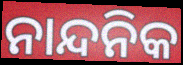
ନାନ୍ଦନିକ